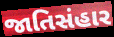
જાતિસંહાર